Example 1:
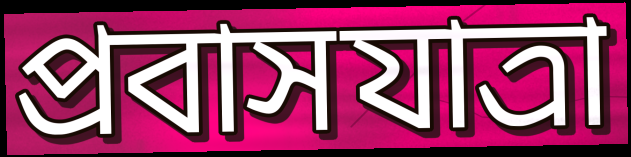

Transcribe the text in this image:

প্রবাসযাত্রা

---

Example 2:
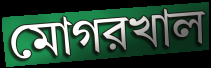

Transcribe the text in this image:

মোগরখাল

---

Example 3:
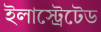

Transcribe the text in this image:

ইলাস্ট্রেটেড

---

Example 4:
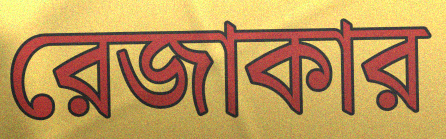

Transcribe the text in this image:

রেজাকার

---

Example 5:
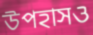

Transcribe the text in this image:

উপহাসও